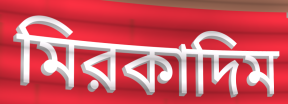
মিরকাদিম